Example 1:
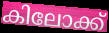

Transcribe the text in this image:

കിലോക്ക്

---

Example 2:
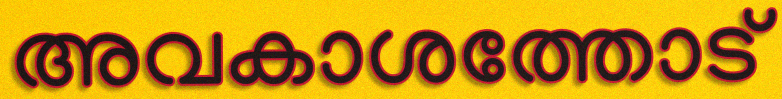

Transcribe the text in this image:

അവകാശത്തോട്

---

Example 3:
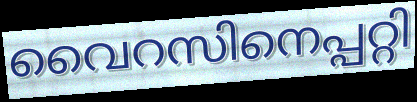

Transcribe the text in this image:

വൈറസിനെപ്പറ്റി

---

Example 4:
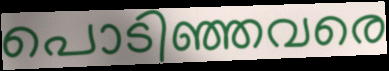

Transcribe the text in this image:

പൊടിഞ്ഞവരെ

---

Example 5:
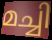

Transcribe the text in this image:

മച്ചി